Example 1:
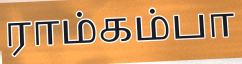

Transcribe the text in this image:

ராம்கம்பா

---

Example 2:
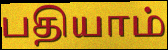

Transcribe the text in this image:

பதியாம்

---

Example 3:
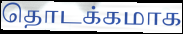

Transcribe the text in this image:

தொடக்கமாக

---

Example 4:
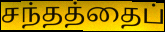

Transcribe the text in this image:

சந்தத்தைப்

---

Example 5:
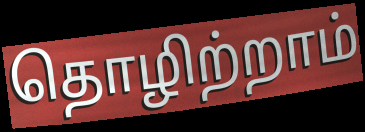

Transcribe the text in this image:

தொழிற்றாம்